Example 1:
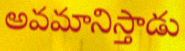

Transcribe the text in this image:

అవమానిస్తాడు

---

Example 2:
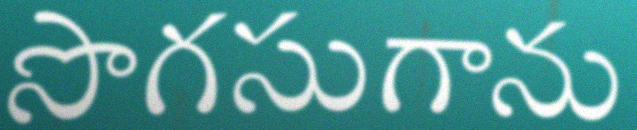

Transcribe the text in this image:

సొగసుగాను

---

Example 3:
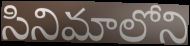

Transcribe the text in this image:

సినిమాలోని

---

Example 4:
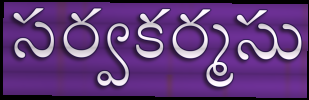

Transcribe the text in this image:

సర్వకర్మసు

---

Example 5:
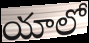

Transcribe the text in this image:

యాలో